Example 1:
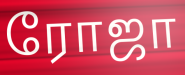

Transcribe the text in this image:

ரோஜா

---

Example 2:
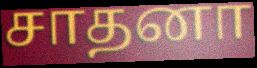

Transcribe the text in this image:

சாதனா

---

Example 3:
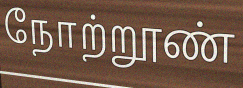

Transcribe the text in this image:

நோற்றூண்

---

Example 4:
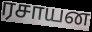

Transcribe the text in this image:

ரசாயன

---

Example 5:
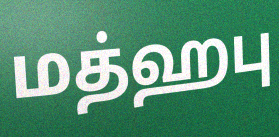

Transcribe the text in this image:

மத்ஹபு